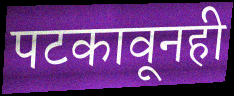
पटकावूनही